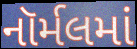
નૉર્મલમાં